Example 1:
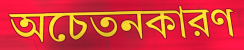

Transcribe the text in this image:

অচেতনকারণ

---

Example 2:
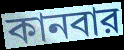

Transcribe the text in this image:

কানবার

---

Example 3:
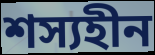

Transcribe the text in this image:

শস্যহীন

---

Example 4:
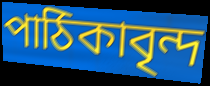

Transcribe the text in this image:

পাঠিকাবৃন্দ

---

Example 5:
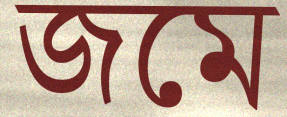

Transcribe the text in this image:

জমে